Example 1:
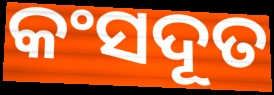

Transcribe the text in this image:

କଂସଦୂତ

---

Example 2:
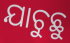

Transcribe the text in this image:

ଯାଚୁଛୁ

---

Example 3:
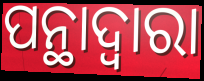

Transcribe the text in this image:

ପନ୍ଥାଦ୍ୱାରା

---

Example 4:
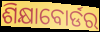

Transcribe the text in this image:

ଶିକ୍ଷାବୋର୍ଡର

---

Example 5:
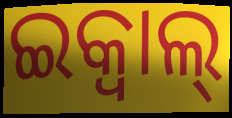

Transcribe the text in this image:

ଇକ୍ବାଲ୍